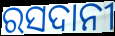
ରସଦାନୀ